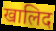
खालिद